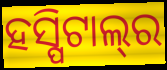
ହସ୍ପିଟାଲ୍‌ର